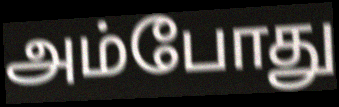
அம்போது